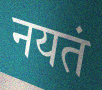
नयतं